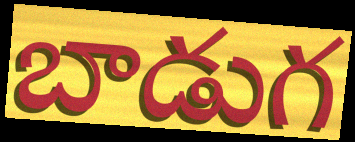
బాడుగ